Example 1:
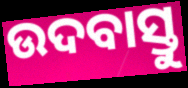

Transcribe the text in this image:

ଉଦବାସ୍ତୁ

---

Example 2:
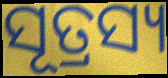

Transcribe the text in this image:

ସୂତ୍ରସ୍ୟ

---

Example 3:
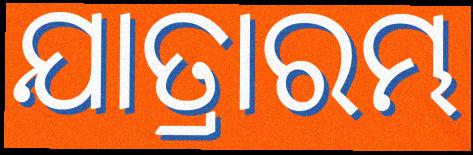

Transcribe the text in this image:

ଯାତ୍ରାରମ୍ଭ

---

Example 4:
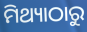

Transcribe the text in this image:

ମିଥ୍ୟାଠାରୁ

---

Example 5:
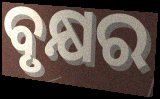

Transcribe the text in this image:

ବୃକ୍ଷର